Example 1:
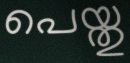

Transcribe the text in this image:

പെയ്തു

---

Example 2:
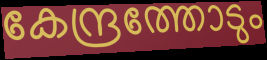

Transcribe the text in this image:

കേന്ദ്രത്തോടും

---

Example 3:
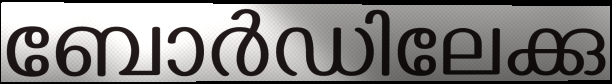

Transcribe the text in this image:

ബോർഡിലേക്കു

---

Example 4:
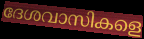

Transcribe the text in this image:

ദേശവാസികളെ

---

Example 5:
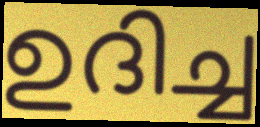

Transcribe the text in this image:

ഉദിച്ച